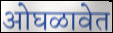
ओघळावेत